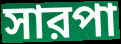
সারপা